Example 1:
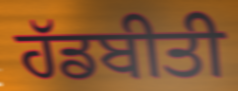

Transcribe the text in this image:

ਹੱਡਬੀਤੀ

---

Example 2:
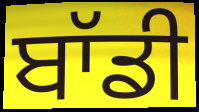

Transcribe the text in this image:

ਬਾੱਡੀ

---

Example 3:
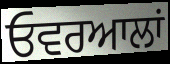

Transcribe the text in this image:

ਓਵਰਆਲਾਂ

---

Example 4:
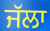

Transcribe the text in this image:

ਜੱਲਾ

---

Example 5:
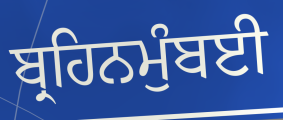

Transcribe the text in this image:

ਬ੍ਰਹਿਨਮੁੰਬਈ